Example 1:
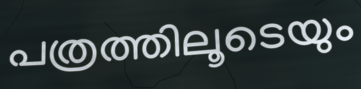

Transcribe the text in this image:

പത്രത്തിലൂടെയും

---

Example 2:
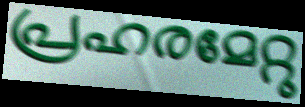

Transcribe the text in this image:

പ്രഹരമേറ്റു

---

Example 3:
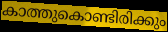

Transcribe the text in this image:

കാത്തുകൊണ്ടിരിക്കും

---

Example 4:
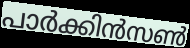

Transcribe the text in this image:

പാർക്കിൻസൺ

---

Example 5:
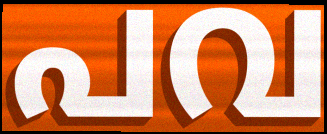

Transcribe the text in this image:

പവ